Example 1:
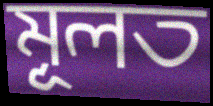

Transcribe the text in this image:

মূলত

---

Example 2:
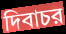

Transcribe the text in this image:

দিবাচর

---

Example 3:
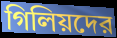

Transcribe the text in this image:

গিলিয়দের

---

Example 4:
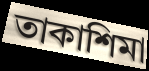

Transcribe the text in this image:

তাকাশিমা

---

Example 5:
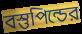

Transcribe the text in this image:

বস্তুপিন্ডের